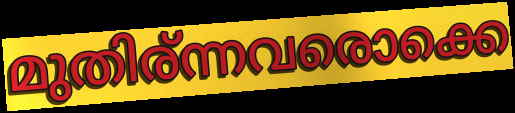
മുതിര്ന്നവരൊക്കെ